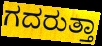
ಗದರುತ್ತಾ